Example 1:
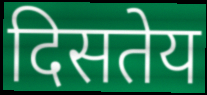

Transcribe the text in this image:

दिसतेय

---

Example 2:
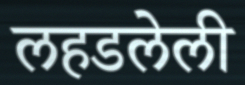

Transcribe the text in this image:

लहडलेली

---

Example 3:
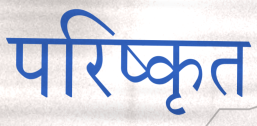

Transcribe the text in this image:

परिष्कृत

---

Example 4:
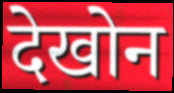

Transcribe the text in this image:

देखोन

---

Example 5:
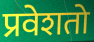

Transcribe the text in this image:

प्रवेशतो